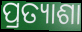
ପ୍ରତ୍ୟାଶା